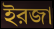
ইরজা